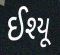
ઈશ્યૂ